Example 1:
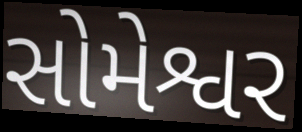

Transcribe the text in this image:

સોમેશ્વર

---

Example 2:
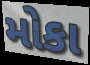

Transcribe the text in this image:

મોકા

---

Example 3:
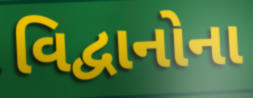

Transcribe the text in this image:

વિદ્વાનોના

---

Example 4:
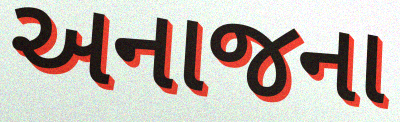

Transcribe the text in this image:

અનાજના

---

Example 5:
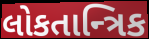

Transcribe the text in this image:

લોકતાન્ત્રિક